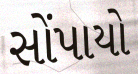
સોંપાયો